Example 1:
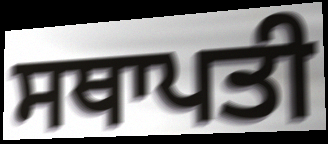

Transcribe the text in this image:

ਸਥਾਪਤੀ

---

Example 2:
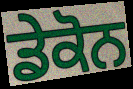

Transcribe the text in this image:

ਡੇਕੋਨ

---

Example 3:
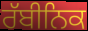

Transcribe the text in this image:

ਰੱਬੀਨਿਕ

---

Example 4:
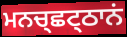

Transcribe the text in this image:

ਮਨਚ੍ਛਟ੍ਠਾਨਂ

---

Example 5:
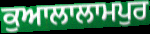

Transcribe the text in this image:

ਕੁਆਲਾਲਾਮਪੁਰ